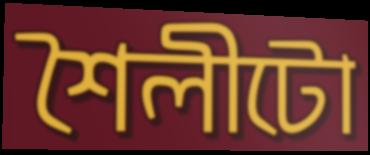
শৈলীটো